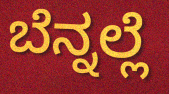
ಬೆನ್ನಲ್ಲೆ